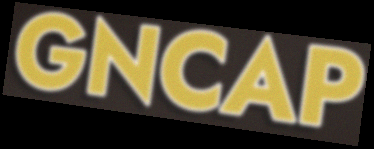
GNCAP